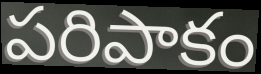
పరిపాకం